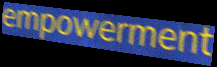
empowerment